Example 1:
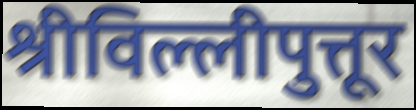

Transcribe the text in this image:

श्रीविल्लीपुत्तूर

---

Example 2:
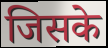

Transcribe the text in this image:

जिसके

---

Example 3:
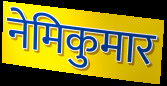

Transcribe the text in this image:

नेमिकुमार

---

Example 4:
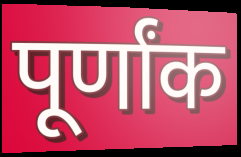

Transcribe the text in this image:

पूर्णांक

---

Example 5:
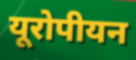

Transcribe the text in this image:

यूरोपीयन